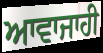
ਆਵਾਜਾਹੀ